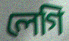
লেগি